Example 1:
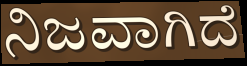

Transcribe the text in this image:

ನಿಜವಾಗಿದೆ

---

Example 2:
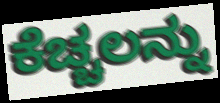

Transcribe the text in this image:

ಕೆಚ್ಚಲನ್ನು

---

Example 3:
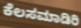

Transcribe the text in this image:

ಕೆಲಸಮಾಡಿರಿ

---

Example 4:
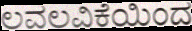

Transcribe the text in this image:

ಲವಲವಿಕೆಯಿಂದ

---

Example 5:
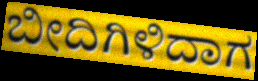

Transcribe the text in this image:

ಬೀದಿಗಿಳಿದಾಗ